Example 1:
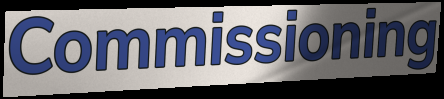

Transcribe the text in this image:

Commissioning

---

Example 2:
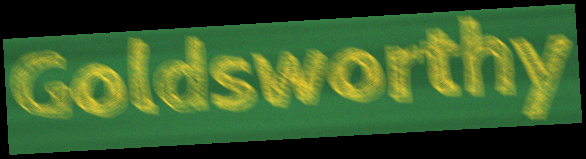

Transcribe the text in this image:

Goldsworthy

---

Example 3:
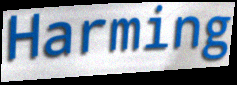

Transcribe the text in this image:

Harming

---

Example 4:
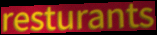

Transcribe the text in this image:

resturants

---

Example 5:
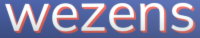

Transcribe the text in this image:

wezens